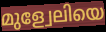
മുള്വേലിയെ